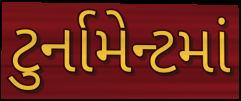
ટુર્નામેન્ટમાં